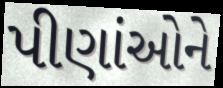
પીણાંઓને